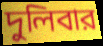
দুলিবার